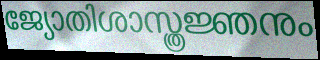
ജ്യോതിശാസ്ത്രജ്ഞനും